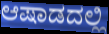
ಆಷಾಡದಲ್ಲಿ